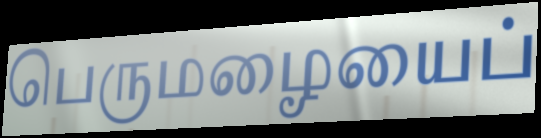
பெருமழையைப்